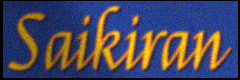
Saikiran